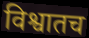
विश्वातच